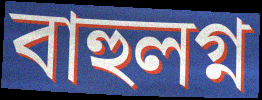
বাহুলগ্ন